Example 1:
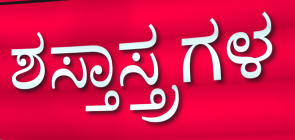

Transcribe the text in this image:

ಶಸ್ತಾಸ್ತ್ರಗಳ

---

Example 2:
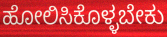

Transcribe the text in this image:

ಹೋಲಿಸಿಕೊಳ್ಳಬೇಕು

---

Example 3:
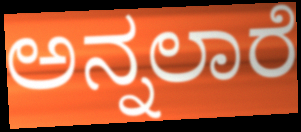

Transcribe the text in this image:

ಅನ್ನಲಾರೆ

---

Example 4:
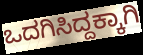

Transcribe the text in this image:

ಒದಗಿಸಿದ್ದಕ್ಕಾಗಿ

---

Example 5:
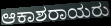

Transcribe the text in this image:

ಆಕಾಶರಾಯರು